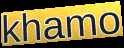
khamo